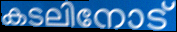
കടലിനോട്